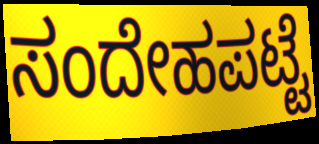
ಸಂದೇಹಪಟ್ಟೆ